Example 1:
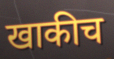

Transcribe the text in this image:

खाकीच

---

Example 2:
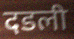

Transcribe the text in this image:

दडली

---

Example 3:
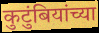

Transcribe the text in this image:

कुटुंबियांच्या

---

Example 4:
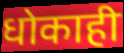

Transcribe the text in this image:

धोकाही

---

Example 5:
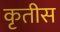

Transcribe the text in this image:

कृतीस